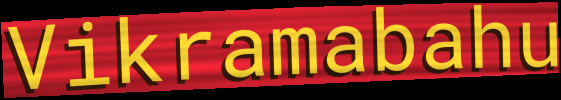
Vikramabahu